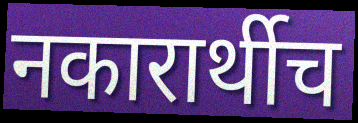
नकारार्थीच